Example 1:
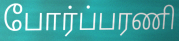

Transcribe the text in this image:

போர்ப்பரணி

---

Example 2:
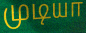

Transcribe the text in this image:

முடியா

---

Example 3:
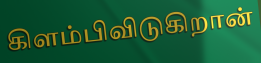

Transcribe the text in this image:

கிளம்பிவிடுகிறான்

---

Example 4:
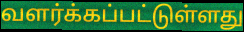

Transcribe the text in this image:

வளர்க்கப்பட்டுள்ளது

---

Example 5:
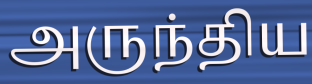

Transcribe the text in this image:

அருந்திய